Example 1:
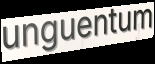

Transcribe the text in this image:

unguentum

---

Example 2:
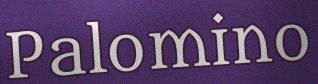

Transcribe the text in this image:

Palomino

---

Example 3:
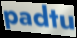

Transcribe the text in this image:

padtu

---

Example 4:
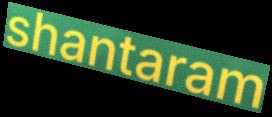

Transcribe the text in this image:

shantaram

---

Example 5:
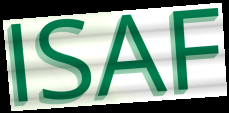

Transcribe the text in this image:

ISAF